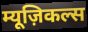
म्यूज़िकल्स